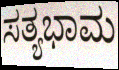
ಸತ್ಯಭಾಮ